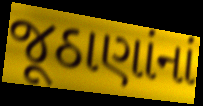
જૂઠાણાંનાં